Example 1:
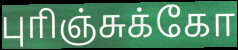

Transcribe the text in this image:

புரிஞ்சுக்கோ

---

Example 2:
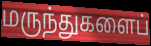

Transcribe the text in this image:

மருந்துகளைப்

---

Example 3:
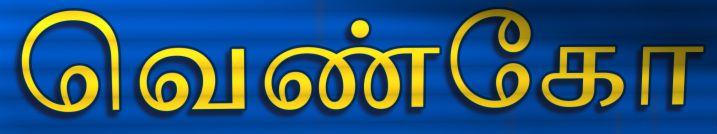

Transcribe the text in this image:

வெண்கோ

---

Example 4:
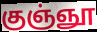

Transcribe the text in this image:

குஞ்ஞூ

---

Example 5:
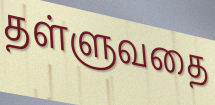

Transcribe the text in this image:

தள்ளுவதை